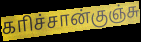
கரிச்சான்குஞ்சு